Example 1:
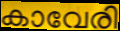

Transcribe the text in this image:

കാവേരി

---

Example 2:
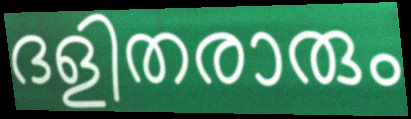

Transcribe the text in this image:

ദളിതരാരും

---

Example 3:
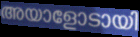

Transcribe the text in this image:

അയാളോടായി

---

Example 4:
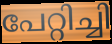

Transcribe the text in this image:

പേറ്റിച്ചി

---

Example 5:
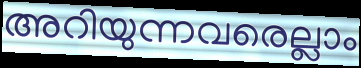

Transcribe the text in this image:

അറിയുന്നവരെല്ലാം